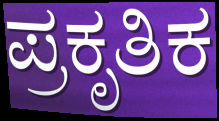
ಪ್ರಕೃತಿಕ